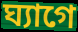
ঘ্যাগে